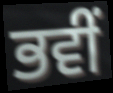
ਭਵੀਂ